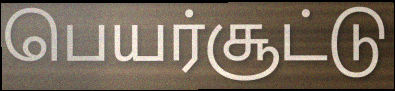
பெயர்சூட்டு